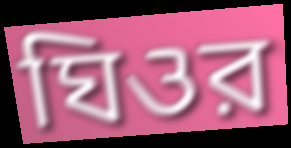
ঘিওর